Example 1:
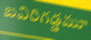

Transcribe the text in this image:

బవిరిగడ్డమూ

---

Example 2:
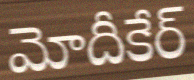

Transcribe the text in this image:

మోదీకేర్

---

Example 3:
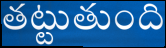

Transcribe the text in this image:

తట్టుతుంది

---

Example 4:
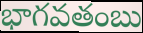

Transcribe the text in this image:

భాగవతంబు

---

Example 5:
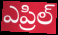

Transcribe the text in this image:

ఎప్రిల్